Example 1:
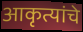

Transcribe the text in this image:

आकृत्यांचे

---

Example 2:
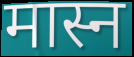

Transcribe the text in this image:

मास्न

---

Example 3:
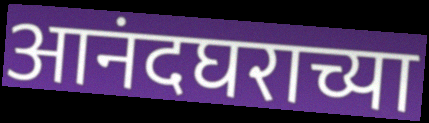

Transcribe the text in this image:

आनंदघराच्या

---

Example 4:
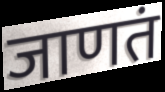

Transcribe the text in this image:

जाणतं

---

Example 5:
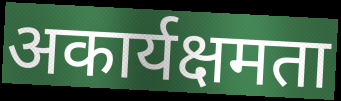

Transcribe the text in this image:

अकार्यक्षमता